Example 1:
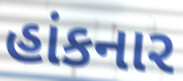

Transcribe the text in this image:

હાંકનાર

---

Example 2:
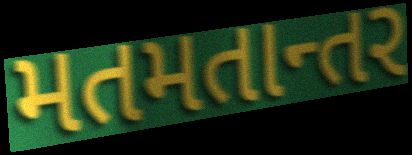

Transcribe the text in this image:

મતમતાન્તર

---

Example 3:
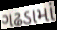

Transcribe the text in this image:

ગઢડામાં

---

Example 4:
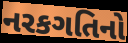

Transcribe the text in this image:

નરકગતિનો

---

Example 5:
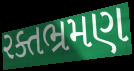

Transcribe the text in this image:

રક્તભ્રમણ